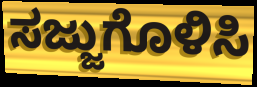
ಸಜ್ಜುಗೊಳಿಸಿ